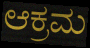
ಆಕ್ರಮ